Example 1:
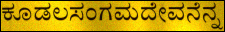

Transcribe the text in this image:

ಕೂಡಲಸಂಗಮದೇವನೆನ್ನ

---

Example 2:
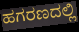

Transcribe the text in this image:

ಹಗರಣದಲ್ಲಿ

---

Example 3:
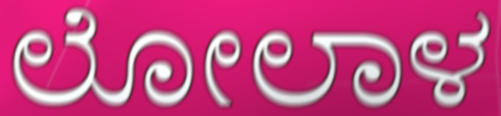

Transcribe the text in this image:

ಲೋಲಾಳ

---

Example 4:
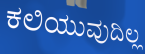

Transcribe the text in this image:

ಕಲಿಯುವುದಿಲ್ಲ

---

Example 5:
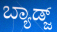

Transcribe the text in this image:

ಬ್ಯಾಡ್ಜ್